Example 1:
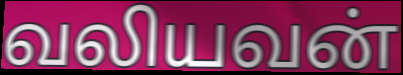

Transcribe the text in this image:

வலியவன்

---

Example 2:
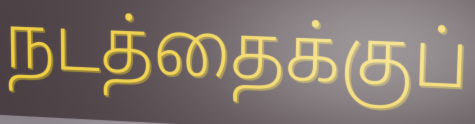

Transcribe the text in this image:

நடத்தைக்குப்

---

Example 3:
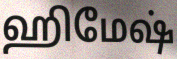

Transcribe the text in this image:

ஹிமேஷ்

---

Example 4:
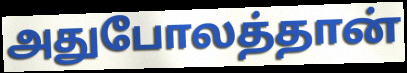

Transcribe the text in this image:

அதுபோலத்தான்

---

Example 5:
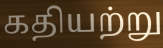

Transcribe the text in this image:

கதியற்று